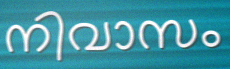
നിവാസം